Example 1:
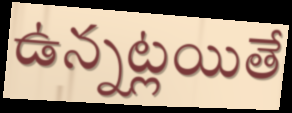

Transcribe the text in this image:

ఉన్నట్లయితే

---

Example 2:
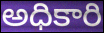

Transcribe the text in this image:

అధికారి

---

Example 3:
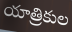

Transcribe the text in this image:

యాత్రికుల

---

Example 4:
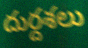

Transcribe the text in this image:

దుర్దశలు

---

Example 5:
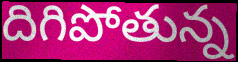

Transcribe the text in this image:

దిగిపోతున్న